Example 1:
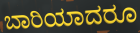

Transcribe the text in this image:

ಬಾರಿಯಾದರೂ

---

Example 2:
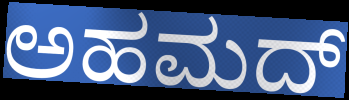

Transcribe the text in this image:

ಅಹಮದ್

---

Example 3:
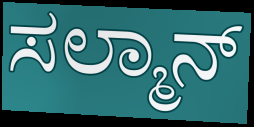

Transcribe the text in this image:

ಸಲ್ಮಾನ್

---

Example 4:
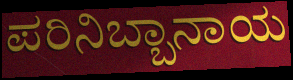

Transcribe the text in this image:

ಪರಿನಿಬ್ಬಾನಾಯ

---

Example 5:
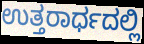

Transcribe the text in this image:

ಉತ್ತರಾರ್ಧದಲ್ಲಿ